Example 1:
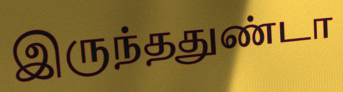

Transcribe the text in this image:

இருந்ததுண்டா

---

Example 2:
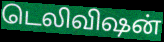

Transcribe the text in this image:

டெலிவிஷன்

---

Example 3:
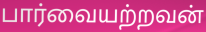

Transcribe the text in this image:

பார்வையற்றவன்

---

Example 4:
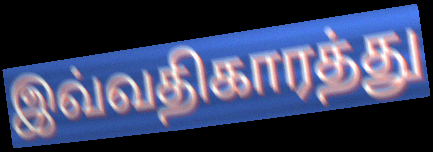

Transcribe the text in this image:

இவ்வதிகாரத்து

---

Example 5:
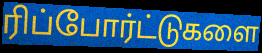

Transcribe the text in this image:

ரிப்போர்ட்டுகளை